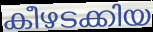
കീഴടക്കിയ